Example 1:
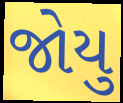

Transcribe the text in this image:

જોયુ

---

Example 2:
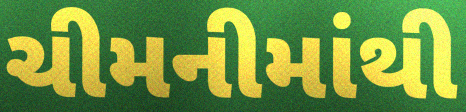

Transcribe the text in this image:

ચીમનીમાંથી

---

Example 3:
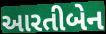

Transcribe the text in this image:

આરતીબેન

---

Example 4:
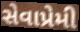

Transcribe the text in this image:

સેવાપ્રેમી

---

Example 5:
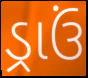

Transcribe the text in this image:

ડ્રાઉં